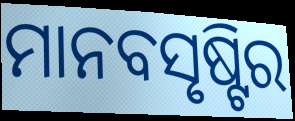
ମାନବସୃଷ୍ଟିର